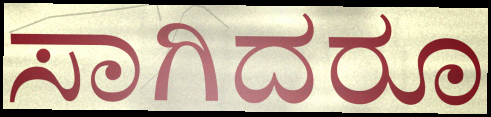
ಸಾಗಿದರೂ